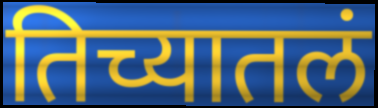
तिच्यातलं